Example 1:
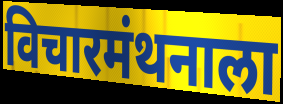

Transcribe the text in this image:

विचारमंथनाला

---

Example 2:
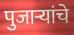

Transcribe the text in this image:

पुजाऱ्यांचे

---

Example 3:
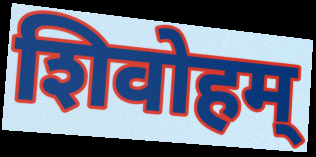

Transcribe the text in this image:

शिवोहम्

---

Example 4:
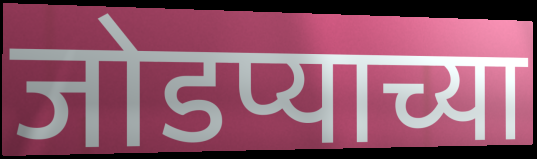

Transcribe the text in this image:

जोडप्याच्या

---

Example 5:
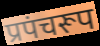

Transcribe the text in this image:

प्रपंचरूप